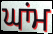
ਘਾਂਮ